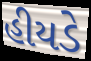
હીયડે